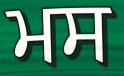
ਮਸ